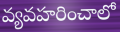
వ్యవహరించాలో